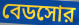
বেডসোর